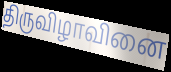
திருவிழாவினை